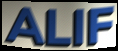
ALIF